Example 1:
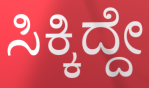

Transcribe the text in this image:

ಸಿಕ್ಕಿದ್ದೇ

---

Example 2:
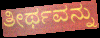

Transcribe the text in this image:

ತೀರ್ಥವನ್ನು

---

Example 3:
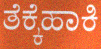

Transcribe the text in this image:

ತೆಕ್ಕೆಹಾಕಿ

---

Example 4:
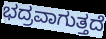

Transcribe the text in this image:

ಭದ್ರವಾಗುತ್ತದೆ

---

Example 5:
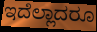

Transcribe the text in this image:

ಇದೆಲ್ಲಾದರೂ